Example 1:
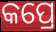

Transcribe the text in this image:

କପ୍ରେ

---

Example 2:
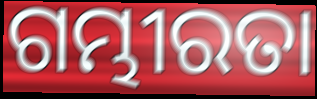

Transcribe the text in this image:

ଗମ୍ଭୀରତା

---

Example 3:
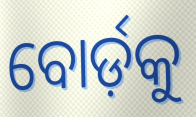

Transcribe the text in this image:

ବୋର୍ଡ଼କୁ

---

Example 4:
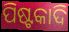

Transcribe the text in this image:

ପିଷ୍ଟକାଦି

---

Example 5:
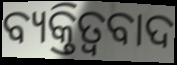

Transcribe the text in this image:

ବ୍ୟକ୍ତିତ୍ବବାଦ